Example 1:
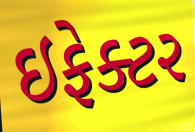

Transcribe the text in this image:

ઇફેક્ટર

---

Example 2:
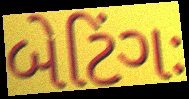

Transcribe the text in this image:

બેટિંગઃ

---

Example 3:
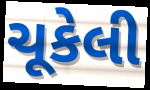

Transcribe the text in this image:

ચૂકેલી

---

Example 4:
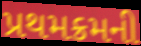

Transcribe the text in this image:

પ્રથમક્રમની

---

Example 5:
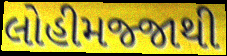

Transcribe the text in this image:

લોહીમજ્જાથી